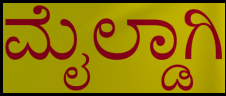
ಮೈಲ್ಡಾಗಿ